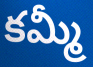
కమ్మీ